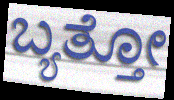
ಬ್ಯತ್ತೋ